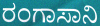
ರಂಗಾಸಾನಿ